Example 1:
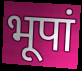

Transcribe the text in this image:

भूपां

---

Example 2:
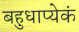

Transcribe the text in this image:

बहुधाप्येकं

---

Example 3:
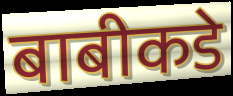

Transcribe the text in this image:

बाबीकडे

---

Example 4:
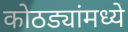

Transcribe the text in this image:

कोठड्यांमध्ये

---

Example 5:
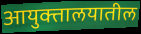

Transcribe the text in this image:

आयुक्तालयातील